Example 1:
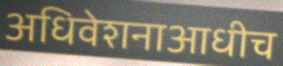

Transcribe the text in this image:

अधिवेशनाआधीच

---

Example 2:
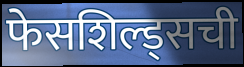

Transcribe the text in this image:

फेसशिल्ड्सची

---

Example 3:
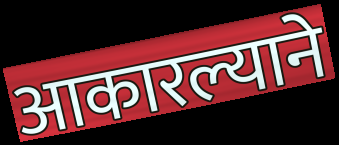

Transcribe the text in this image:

आकारल्याने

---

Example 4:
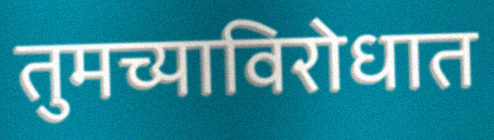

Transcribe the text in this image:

तुमच्याविरोधात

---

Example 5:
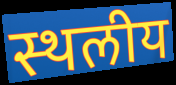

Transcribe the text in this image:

स्थलीय